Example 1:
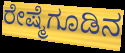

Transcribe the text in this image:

ರೇಷ್ಮೆಗೂಡಿನ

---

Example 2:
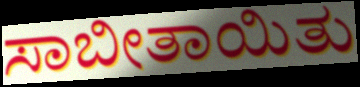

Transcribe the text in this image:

ಸಾಬೀತಾಯಿತು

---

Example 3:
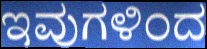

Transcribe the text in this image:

ಇವುಗಳಿಂದ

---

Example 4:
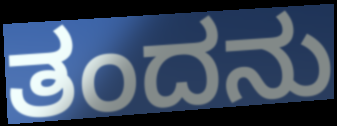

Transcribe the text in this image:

ತಂದನು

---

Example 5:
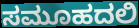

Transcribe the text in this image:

ಸಮೂಹದಲಿ